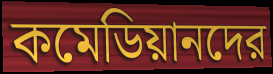
কমেডিয়ানদের